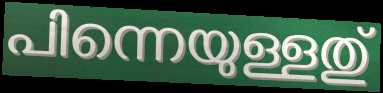
പിന്നെയുള്ളതു്